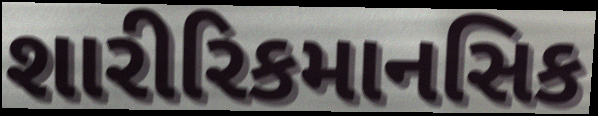
શારીરિકમાનસિક